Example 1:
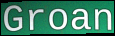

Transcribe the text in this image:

Groan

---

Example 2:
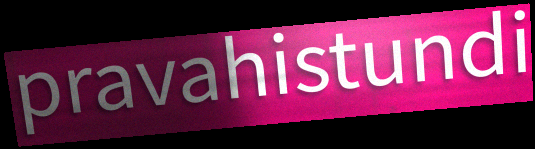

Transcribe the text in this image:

pravahistundi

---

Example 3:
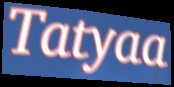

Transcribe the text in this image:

Tatyaa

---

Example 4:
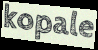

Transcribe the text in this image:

kopale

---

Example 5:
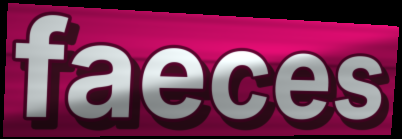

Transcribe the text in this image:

faeces